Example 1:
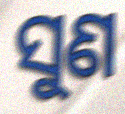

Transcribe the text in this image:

ସୁଣ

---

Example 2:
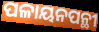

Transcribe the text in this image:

ପଳାୟନପନ୍ଥୀ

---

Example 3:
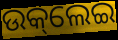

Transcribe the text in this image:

ଉକ୍‌ଲେଇ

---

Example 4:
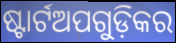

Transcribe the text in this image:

ଷ୍ଟାର୍ଟଅପଗୁଡ଼ିକର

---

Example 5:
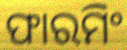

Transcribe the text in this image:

ଫାରମିଂ